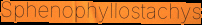
Sphenophyllostachys